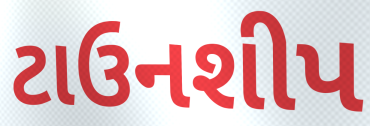
ટાઉનશીપ